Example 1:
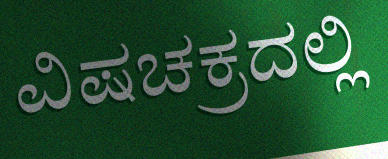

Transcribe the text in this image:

ವಿಷಚಕ್ರದಲ್ಲಿ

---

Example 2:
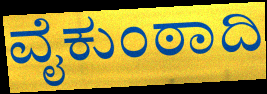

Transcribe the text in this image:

ವೈಕುಂಠಾದಿ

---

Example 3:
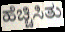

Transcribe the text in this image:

ಹೆಚ್ಚಿಸಿತು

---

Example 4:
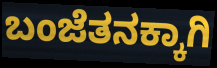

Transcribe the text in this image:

ಬಂಜೆತನಕ್ಕಾಗಿ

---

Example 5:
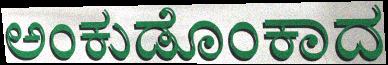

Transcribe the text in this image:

ಅಂಕುಡೊಂಕಾದ